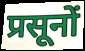
प्रसूनों